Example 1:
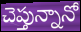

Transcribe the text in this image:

చెప్తున్నానో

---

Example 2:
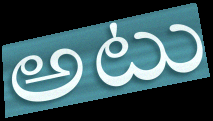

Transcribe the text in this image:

అటు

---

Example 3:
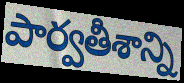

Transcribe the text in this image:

పార్వతీశాన్ని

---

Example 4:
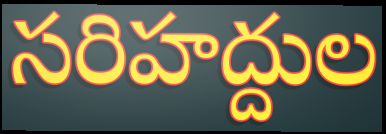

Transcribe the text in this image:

సరిహద్దుల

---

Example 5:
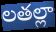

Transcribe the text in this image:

లతల్లా